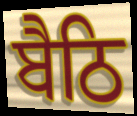
ਬੈਠਿ